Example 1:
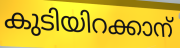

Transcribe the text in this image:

കുടിയിറക്കാന്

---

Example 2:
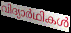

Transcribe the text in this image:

വിദ്യാർഥികൾ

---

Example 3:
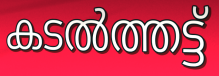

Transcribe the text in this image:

കടൽത്തട്ട്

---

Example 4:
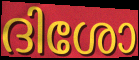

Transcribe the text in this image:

ദിശോ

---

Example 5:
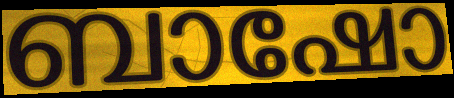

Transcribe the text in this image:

ബാഷോ